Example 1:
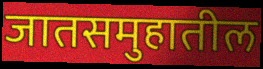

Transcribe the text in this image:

जातसमुहातील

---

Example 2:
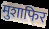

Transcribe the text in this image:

मुशाफिर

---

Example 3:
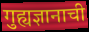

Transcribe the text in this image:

गुह्यज्ञानाची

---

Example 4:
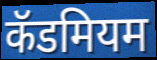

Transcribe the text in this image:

कॅडमियम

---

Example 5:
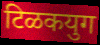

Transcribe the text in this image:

टिळकयुग